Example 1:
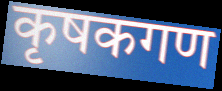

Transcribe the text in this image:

कृषकगण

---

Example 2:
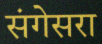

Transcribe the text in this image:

संगेसरा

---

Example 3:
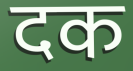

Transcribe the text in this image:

दक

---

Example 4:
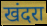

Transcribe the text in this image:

खंदरा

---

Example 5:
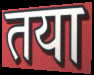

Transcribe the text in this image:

तया